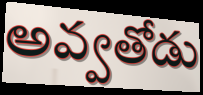
అవ్వతోడు